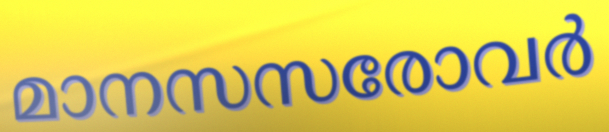
മാനസസരോവർ